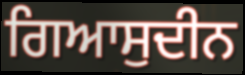
ਗਿਆਸੁਦੀਨ